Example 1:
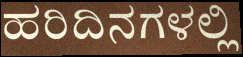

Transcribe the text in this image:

ಹರಿದಿನಗಳಲ್ಲಿ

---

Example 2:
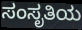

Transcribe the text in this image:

ಸಂಸೃತಿಯ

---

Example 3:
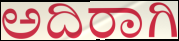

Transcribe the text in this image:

ಅದಿರಾಗಿ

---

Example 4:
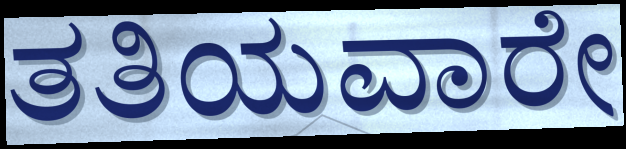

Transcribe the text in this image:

ತತಿಯವಾರೇ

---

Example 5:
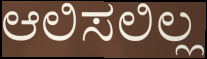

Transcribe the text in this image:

ಆಲಿಸಲಿಲ್ಲ